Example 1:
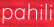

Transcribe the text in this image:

pahili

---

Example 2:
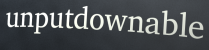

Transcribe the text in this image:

unputdownable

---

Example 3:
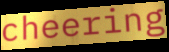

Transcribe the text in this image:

cheering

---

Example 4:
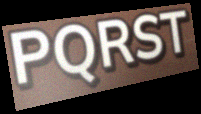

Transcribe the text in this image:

PQRST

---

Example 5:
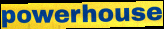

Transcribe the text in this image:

powerhouse